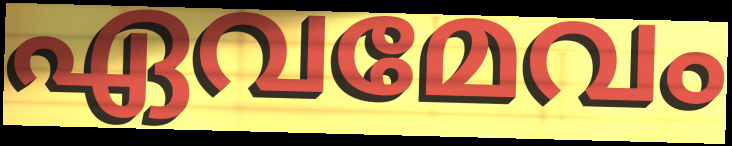
ഏവമേവം